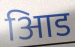
आिड